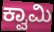
ಕ್ವಾಮಿ